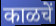
काळचें